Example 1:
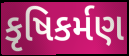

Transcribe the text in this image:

કૃષિકર્મણ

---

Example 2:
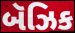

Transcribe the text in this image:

બૅઝિક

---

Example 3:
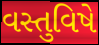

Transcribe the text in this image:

વસ્તુવિષે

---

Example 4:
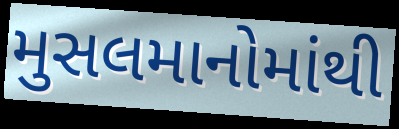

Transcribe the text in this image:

મુસલમાનોમાંથી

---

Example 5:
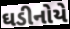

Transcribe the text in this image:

ઘડીનોયે